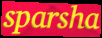
sparsha